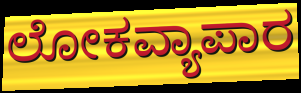
ಲೋಕವ್ಯಾಪಾರ